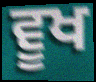
ਵੂਖ